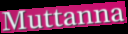
Muttanna